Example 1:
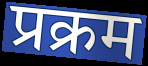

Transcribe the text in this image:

प्रक्रम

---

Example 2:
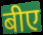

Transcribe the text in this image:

बीए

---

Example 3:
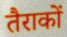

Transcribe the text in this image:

तैराकों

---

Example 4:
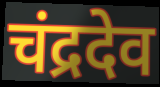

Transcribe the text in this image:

चंद्रदेव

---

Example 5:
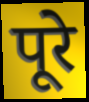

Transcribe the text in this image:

पूरे